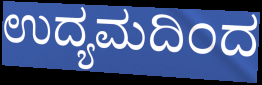
ಉದ್ಯಮದಿಂದ